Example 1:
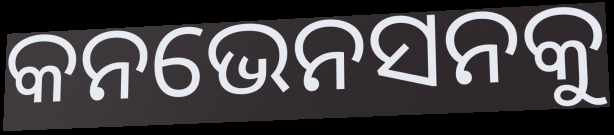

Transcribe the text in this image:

କନଭେନସନକୁ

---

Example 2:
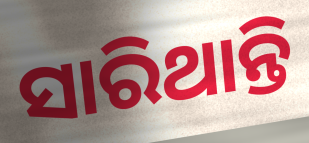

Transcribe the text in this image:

ସାରିଥାନ୍ତି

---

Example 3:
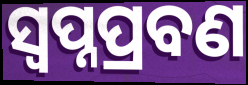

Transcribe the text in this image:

ସ୍ଵପ୍ନପ୍ରବଣ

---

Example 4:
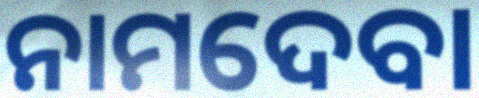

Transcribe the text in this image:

ନାମଦେବା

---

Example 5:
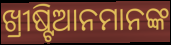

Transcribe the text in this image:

ଖ୍ରୀଷ୍ଟିଆନମାନଙ୍କ